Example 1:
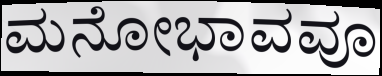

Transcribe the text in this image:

ಮನೋಭಾವವೂ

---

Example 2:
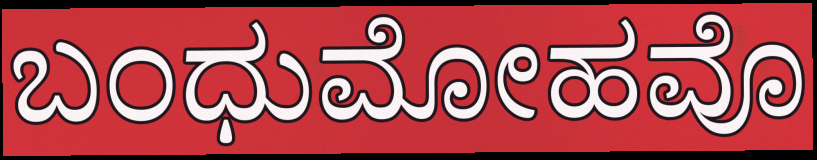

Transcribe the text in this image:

ಬಂಧುಮೋಹವೊ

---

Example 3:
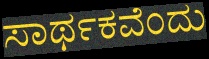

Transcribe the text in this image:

ಸಾರ್ಥಕವೆಂದು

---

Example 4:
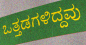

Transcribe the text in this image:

ಒತ್ತಡಗಳಿದ್ದವು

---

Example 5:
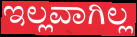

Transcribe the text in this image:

ಇಲ್ಲವಾಗಿಲ್ಲ